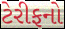
ટેરીફનો